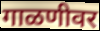
गाळणीवर